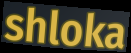
shloka